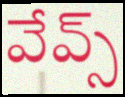
వేవ్స్